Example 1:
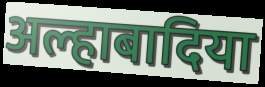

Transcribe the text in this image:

अल्हाबादिया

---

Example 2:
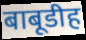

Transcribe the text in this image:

बाबूडीह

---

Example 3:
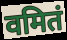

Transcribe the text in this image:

वमितं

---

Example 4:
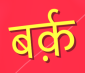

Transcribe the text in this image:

बर्क़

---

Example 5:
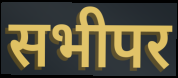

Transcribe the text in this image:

सभीपर